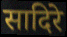
सादिरे